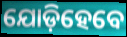
ଯୋଡ଼ିହେବେ